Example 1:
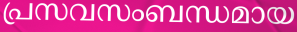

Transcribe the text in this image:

പ്രസവസംബന്ധമായ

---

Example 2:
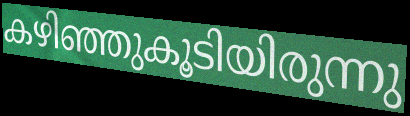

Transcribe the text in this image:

കഴിഞ്ഞുകൂടിയിരുന്നു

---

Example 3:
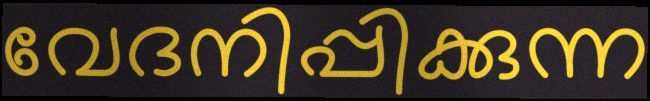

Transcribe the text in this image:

വേദനിപ്പിക്കുന്ന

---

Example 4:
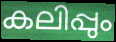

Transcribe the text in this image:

കലിപ്പും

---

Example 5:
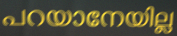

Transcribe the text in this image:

പറയാനേയില്ല